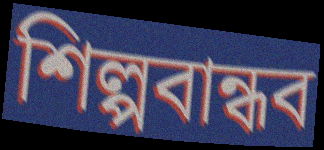
শিল্পবান্ধব